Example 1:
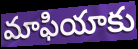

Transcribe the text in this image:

మాఫియాకు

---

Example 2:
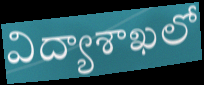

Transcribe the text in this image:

విద్యాశాఖలో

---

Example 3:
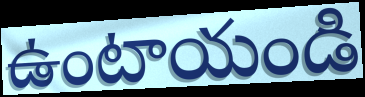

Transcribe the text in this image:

ఉంటాయండి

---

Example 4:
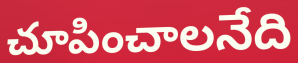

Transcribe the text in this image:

చూపించాలనేది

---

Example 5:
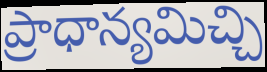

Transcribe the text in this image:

ప్రాధాన్యమిచ్చి